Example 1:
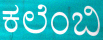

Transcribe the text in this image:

ಕಲೆಂಬಿ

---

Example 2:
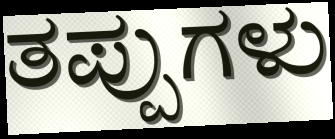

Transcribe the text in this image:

ತಪ್ಪುಗಳು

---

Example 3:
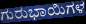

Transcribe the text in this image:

ಗುರುಭಾಯಿಗಳ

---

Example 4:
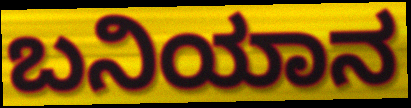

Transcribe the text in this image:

ಬನಿಯಾನ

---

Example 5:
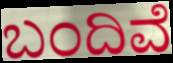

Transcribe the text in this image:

ಬಂದಿವೆ